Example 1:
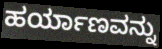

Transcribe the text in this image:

ಹರ್ಯಾಣವನ್ನು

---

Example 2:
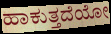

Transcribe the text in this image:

ಹಾಕುತ್ತದೆಯೋ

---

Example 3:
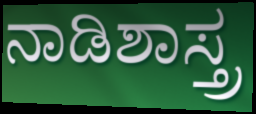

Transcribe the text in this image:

ನಾಡಿಶಾಸ್ತ್ರ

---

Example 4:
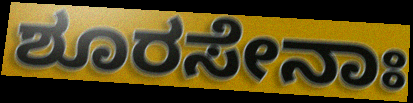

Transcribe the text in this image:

ಶೂರಸೇನಾಃ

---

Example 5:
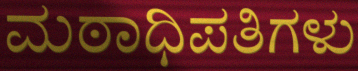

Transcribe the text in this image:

ಮಠಾಧಿಪತಿಗಳು